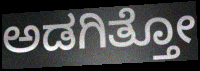
ಅಡಗಿತ್ತೋ